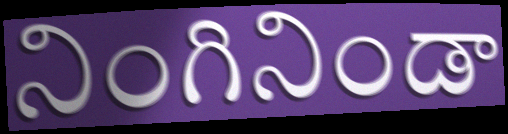
నింగినిండా